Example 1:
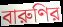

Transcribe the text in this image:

বারুণির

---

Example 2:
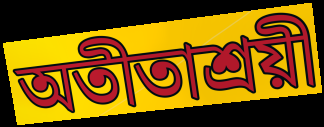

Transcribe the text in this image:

অতীতাশ্রয়ী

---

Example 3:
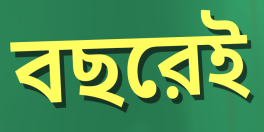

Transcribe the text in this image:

বছরেই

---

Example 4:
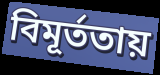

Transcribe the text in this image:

বিমূর্ততায়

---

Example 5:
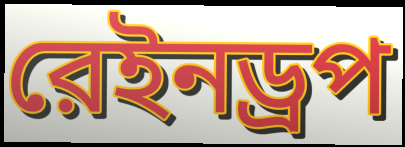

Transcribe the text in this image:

রেইনড্রপ